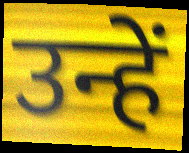
उन्‍हें